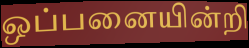
ஒப்பனையின்றி